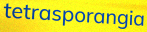
tetrasporangia